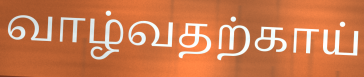
வாழ்வதற்காய்